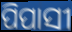
ପିପାସୀ